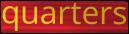
quarters